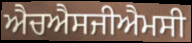
ਐਚਐਸਜੀਐਮਸੀ